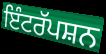
ਇੰਟਰੱਪਸ਼ਨ